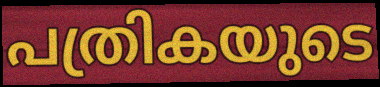
പത്രികയുടെ